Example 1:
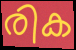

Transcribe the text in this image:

രിക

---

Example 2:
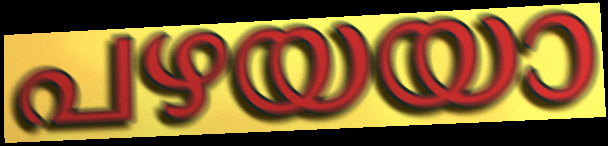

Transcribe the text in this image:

പഴയയാ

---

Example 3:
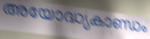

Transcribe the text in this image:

അയോദ്ധ്യകാണ്ഡം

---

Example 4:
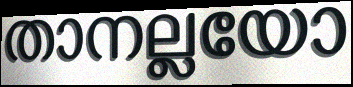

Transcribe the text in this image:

താനല്ലയോ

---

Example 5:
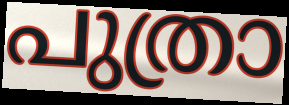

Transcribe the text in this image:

പുത്രാ